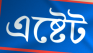
এষ্টেট